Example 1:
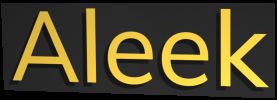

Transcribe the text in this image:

Aleek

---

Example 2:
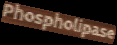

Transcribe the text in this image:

Phospholipase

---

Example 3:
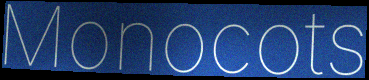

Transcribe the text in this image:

Monocots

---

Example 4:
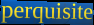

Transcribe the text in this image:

perquisite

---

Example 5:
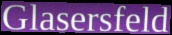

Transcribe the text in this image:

Glasersfeld